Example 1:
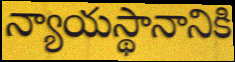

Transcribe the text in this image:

న్యాయస్థానానికి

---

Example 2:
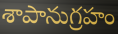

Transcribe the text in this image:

శాపానుగ్రహం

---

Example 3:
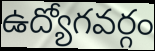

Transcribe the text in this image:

ఉద్యోగవర్గం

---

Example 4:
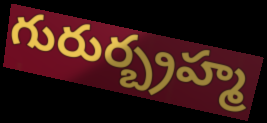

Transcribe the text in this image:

గురుర్బ్రహ్మ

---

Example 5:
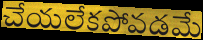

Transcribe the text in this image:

చేయలేకపోవడమే